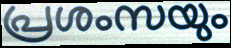
പ്രശംസയും